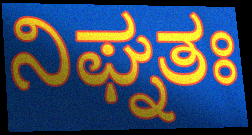
ನಿಘ್ನತಃ